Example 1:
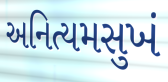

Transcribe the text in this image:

અનિત્યમસુખં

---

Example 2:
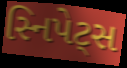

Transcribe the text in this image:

સ્નિપેટ્સ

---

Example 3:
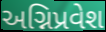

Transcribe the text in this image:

અગ્નિપ્રવેશ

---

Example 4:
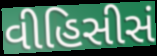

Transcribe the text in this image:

વીહિસીસં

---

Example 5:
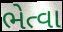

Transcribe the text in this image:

ભેત્વા